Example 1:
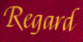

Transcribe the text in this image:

Regard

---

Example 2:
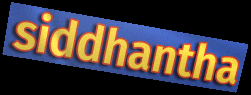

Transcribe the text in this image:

siddhantha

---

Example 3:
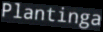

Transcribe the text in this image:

Plantinga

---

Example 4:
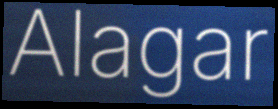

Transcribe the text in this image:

Alagar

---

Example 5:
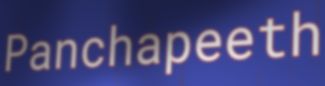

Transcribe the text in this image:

Panchapeeth